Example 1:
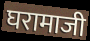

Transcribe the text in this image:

घरामाजी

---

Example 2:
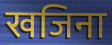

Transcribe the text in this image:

खजिना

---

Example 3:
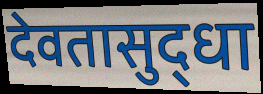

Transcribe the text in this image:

देवतासुद्धा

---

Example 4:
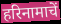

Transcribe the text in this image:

हरिनामाचें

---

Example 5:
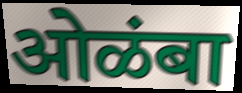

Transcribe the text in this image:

ओळंबा